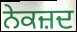
ਨੇਕਜ਼ਦ